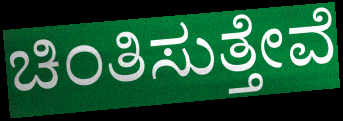
ಚಿಂತಿಸುತ್ತೇವೆ